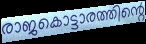
രാജകൊട്ടാരത്തിന്റെ